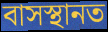
বাসস্থানত